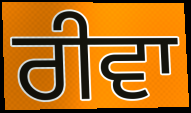
ਰੀਵਾ